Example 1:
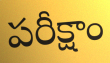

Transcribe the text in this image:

పరీక్షాం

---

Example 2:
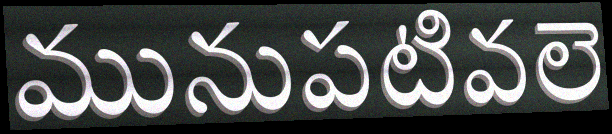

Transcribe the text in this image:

మునుపటివలె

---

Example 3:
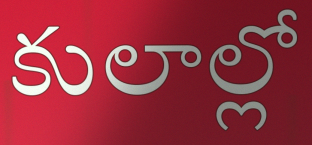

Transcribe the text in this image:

కులాల్లో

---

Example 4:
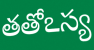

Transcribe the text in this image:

తతోఽస్య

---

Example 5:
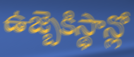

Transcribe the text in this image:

ఉజ్బెకిస్థాన్లో